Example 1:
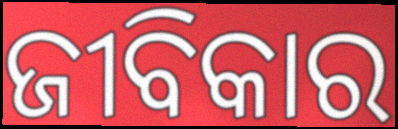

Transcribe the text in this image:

ଜୀବିକାର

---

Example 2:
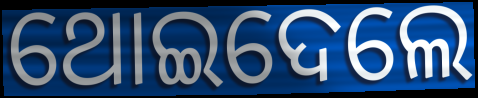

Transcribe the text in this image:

ଥୋଇଦେଲେ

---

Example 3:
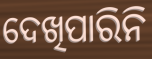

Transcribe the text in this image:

ଦେଖିପାରିନି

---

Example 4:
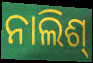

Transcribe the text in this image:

ନାଲିଶ୍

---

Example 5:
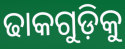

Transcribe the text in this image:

ଢାକଗୁଡ଼ିକୁ